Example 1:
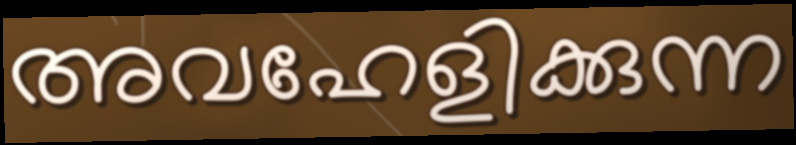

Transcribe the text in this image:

അവഹേളിക്കുന്ന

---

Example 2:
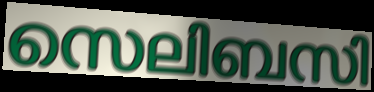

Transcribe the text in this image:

സെലിബസി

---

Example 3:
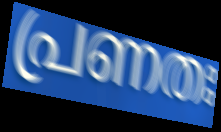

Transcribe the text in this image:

പ്രണതഃ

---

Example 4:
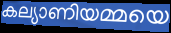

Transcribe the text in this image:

കല്യാണിയമ്മയെ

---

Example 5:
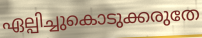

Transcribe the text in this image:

ഏല്പിച്ചുകൊടുക്കരുതേ